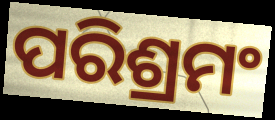
ପରିଶ୍ରମଂ